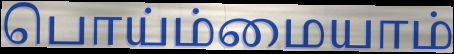
பொய்ம்மையாம்